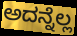
ಅದನ್ನೆಲ್ಲ